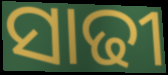
ସାଢୀ